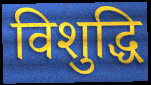
विशुद्धि